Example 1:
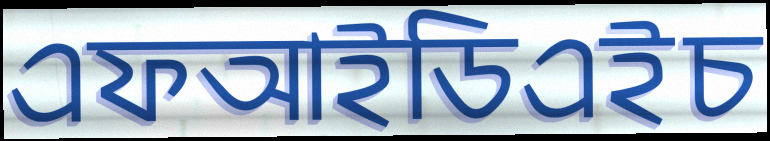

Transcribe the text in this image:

এফআইডিএইচ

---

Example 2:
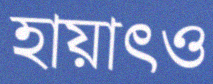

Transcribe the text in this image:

হায়াৎও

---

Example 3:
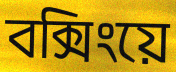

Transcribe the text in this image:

বক্সিংয়ে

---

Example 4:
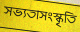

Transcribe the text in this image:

সভ্যতাসংস্কৃতি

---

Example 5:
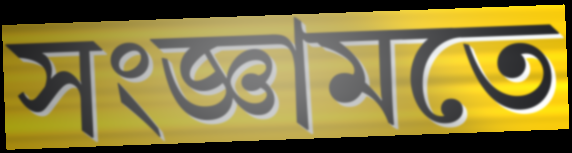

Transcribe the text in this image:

সংজ্ঞামতে